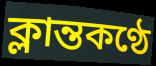
ক্লান্তকণ্ঠে